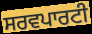
ਸਰਵਪਾਰਟੀ